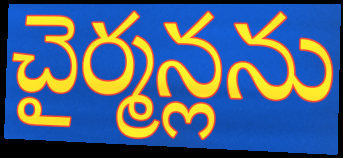
చైర్మన్లను